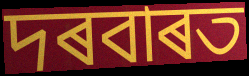
দৰবাৰত